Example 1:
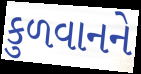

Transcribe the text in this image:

કુળવાનને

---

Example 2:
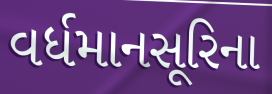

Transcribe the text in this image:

વર્ધમાનસૂરિના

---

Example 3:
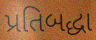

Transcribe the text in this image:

પ્રતિબદ્ધા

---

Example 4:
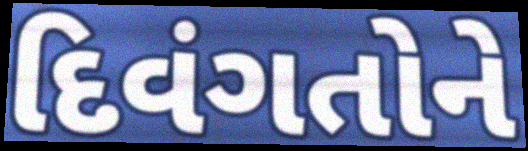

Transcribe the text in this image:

દિવંગતોને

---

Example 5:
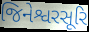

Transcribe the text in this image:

જિનેશ્વરસૂરિ